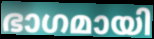
ഭാഗമായി